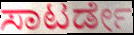
ಸಾಟರ್ಡೇ